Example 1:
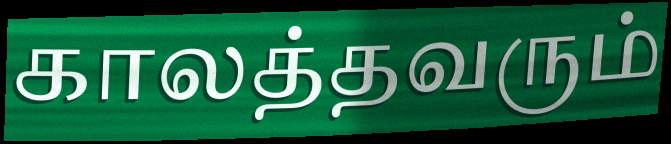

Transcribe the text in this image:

காலத்தவரும்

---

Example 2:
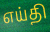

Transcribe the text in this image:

எய்தி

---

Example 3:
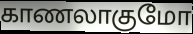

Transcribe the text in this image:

காணலாகுமோ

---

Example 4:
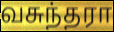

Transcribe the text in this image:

வசுந்தரா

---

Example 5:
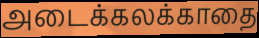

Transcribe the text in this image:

அடைக்கலக்காதை